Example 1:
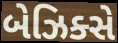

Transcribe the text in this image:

બેઝિક્સે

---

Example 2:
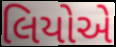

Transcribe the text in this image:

લિયોએ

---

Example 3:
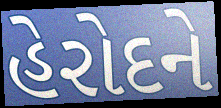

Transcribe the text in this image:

હેરોદને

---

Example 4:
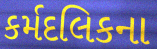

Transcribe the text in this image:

કર્મદલિકના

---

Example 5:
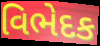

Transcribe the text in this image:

વિભેદક